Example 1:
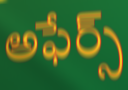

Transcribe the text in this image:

అఫేర్స్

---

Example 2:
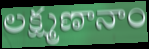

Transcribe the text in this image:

లక్ష్మణానాం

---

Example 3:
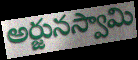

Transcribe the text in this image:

అర్జునస్వామి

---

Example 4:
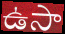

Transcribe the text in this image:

ఉసా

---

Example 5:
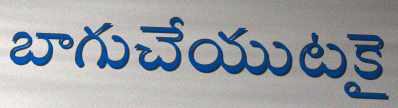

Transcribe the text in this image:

బాగుచేయుటకై